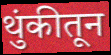
थुंकीतून